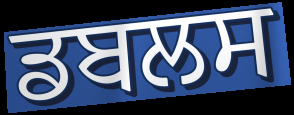
ਡਬਲਸ